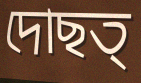
দোছত্